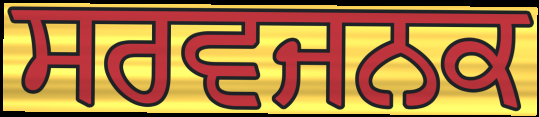
ਸਰਵਜਨਕ